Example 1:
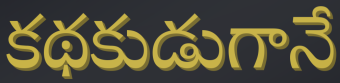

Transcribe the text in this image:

కథకుడుగానే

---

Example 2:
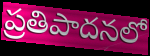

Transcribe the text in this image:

ప్రతిపాదనలో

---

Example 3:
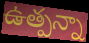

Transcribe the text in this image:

ఉత్పన్నా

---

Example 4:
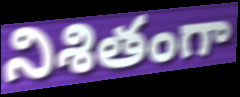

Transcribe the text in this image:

నిశితంగా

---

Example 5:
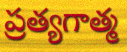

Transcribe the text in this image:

ప్రత్యగాత్మ